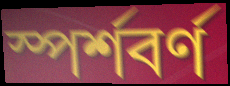
স্পৰ্শবৰ্ণ